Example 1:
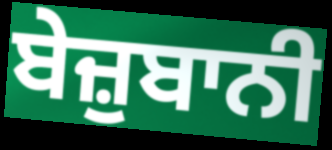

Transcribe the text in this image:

ਬੇਜ਼ੁਬਾਨੀ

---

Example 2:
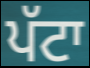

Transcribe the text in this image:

ਪੱਟਾ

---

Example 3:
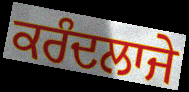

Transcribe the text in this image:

ਕਰੰਦਲਾਜੇ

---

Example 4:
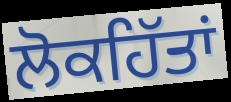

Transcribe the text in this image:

ਲੋਕਹਿੱਤਾਂ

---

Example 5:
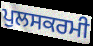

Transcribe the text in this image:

ਪੁਲਸਕਰਮੀ